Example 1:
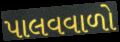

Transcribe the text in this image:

પાલવવાળો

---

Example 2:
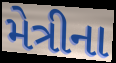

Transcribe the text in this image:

મેત્રીના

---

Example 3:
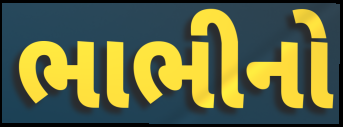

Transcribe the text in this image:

ભાભીનો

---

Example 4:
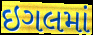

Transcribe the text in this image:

ઇગલમાં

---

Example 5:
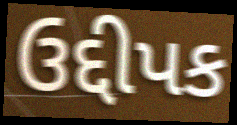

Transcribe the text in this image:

ઉદ્દીપક